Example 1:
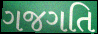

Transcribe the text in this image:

ગજગતિ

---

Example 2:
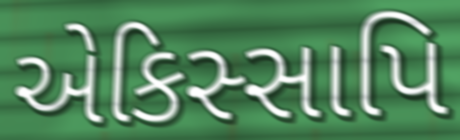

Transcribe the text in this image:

એકિસ્સાપિ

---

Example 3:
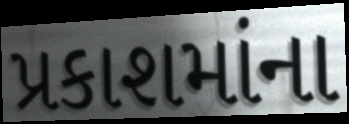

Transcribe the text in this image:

પ્રકાશમાંના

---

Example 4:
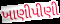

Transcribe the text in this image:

ખાણીપીણી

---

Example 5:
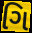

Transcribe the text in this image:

ગિ